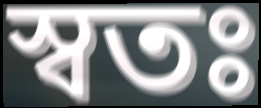
স্বতঃ